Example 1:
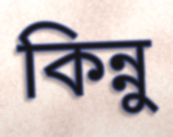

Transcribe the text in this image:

কিন্নু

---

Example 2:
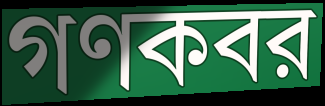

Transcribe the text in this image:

গণকবর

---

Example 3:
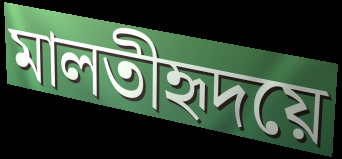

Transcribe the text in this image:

মালতীহৃদয়ে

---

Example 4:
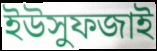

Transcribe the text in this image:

ইউসুফজাই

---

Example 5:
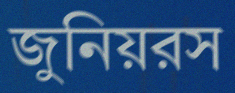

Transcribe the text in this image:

জুনিয়রস